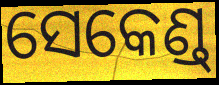
ସେକେଣ୍ଡ୍